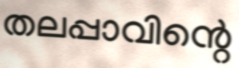
തലപ്പാവിന്റെ